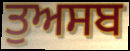
ਤੁਅਸਬ